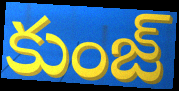
కుంజ్